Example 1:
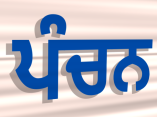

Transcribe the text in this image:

ਪੰਚਨ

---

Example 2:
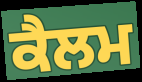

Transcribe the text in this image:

ਕੈਲਮ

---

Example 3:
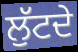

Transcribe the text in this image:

ਲੁੱਟਦੇ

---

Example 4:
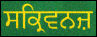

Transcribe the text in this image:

ਸਕ੍ਰਿਵਨਜ਼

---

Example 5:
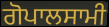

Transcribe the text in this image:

ਗੋਪਾਲਸਾਮੀ